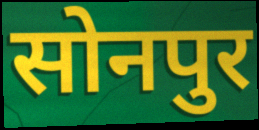
सोनपुर